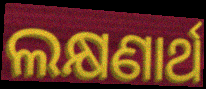
ଲକ୍ଷଣାର୍ଥ